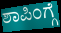
ಶಾಪಿಂಗ್ಗೆ